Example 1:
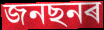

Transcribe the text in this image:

জনছনৰ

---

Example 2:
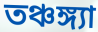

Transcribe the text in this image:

তঞ্চঙ্গ্যা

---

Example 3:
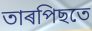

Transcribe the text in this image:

তাৰপিছতে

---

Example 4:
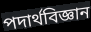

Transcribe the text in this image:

পদাৰ্থবিজ্ঞান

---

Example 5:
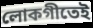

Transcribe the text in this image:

লোকগীতেই